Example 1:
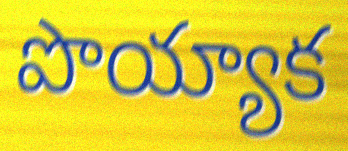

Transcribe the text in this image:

పొయ్యాక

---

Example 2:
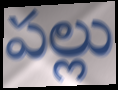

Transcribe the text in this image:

పల్లు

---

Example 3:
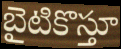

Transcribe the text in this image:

బైటికొస్తూ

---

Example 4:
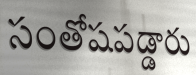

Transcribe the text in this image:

సంతోషపడ్డారు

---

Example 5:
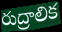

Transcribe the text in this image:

రుద్రాలిక